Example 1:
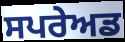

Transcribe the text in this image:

ਸਪਰੇਅਡ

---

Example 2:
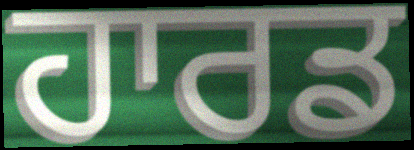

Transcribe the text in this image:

ਹਾਰਡ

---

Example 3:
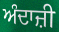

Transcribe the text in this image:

ਅੰਦਾਜ਼ੀ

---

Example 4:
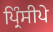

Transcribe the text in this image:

ਪ੍ਰਿੰਸੀਪੇ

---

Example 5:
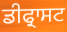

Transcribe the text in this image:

ਡੀਫ੍ਰਾਸਟ